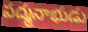
పద్మనాభుడు